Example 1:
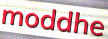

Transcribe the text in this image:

moddhe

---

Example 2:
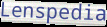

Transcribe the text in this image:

Lenspedia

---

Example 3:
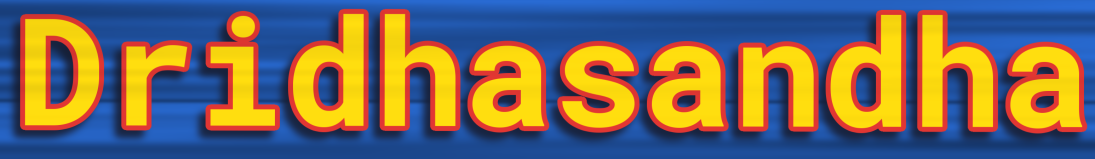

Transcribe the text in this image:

Dridhasandha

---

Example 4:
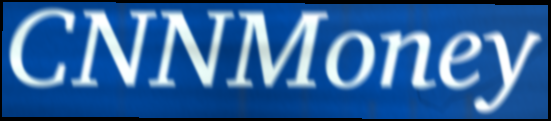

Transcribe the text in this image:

CNNMoney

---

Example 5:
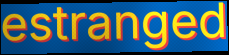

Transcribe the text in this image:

estranged